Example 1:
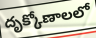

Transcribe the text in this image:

దృక్కోణాలలో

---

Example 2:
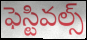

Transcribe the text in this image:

ఫెస్టివల్స్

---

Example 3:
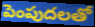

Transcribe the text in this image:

పెంపుదలతో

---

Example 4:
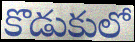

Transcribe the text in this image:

కొడుకులో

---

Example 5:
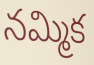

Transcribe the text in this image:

నమ్మిక